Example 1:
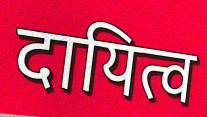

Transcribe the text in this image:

दायित्व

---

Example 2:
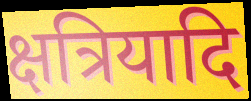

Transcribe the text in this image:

क्षत्रियादि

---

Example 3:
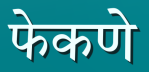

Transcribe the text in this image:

फेकणे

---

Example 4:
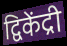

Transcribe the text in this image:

द्विकेंद्री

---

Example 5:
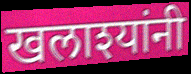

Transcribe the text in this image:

खलाश्यांनी